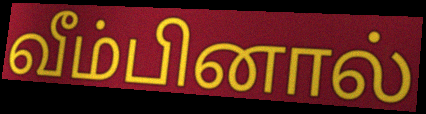
வீம்பினால்